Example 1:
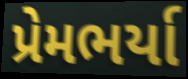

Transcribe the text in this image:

પ્રેમભર્યા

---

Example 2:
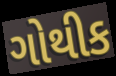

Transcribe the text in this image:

ગોથીક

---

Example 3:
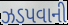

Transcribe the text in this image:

ઝડપવાની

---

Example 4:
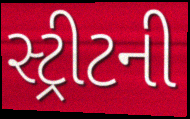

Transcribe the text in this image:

સ્ટ્રીટની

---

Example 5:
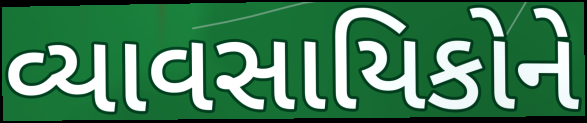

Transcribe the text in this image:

વ્યાવસાયિકોને